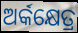
ଅର୍କକ୍ଷେତ୍ର